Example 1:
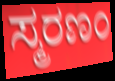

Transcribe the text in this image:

ಸ್ಮರಣಂ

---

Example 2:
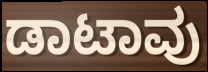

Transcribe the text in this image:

ಡಾಟಾವು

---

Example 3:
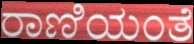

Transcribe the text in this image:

ರಾಣಿಯಂತೆ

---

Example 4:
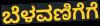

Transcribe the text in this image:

ಬೆಳವಣಿಗೆಗೆ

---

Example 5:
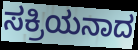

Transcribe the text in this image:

ಸಕ್ರಿಯನಾದ